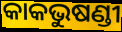
କାକଭୁଷଣ୍ଡୀ